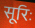
सूरिः